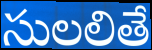
సులలితే